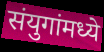
संयुगांमध्ये